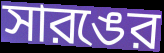
সারঙের